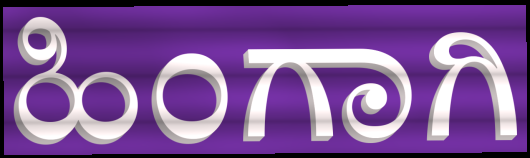
ಹಿಂಗಾಗಿ